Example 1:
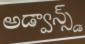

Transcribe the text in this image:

అడ్వాన్స్డ్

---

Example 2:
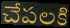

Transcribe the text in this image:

చేపలకి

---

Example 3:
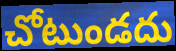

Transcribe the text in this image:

చోటుండదు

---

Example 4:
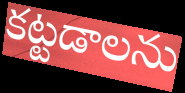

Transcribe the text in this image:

కట్టడాలను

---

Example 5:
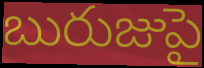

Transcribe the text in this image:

బురుజుపై